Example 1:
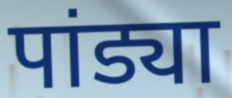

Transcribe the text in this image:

पांड्या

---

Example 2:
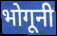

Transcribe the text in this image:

भोगूनी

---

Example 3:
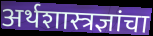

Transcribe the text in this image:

अर्थशास्त्रज्ञांचा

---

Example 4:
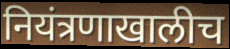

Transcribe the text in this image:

नियंत्रणाखालीच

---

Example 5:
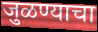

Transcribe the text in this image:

जुळण्याचा